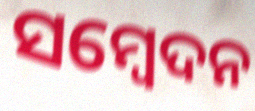
ସମ୍ଵେଦନ